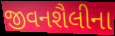
જીવનશૈલીના